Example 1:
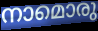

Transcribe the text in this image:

നാമൊരു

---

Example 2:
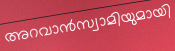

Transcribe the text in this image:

അറവാൻസ്വാമിയുമായി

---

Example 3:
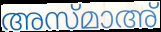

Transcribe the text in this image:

അസ്മാഅ്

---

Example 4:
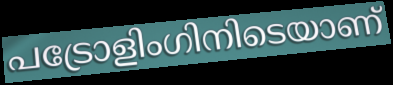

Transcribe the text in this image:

പട്രോളിംഗിനിടെയാണ്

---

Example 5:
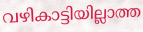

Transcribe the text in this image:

വഴികാട്ടിയില്ലാത്ത